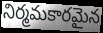
నిర్మమకారమైన